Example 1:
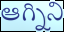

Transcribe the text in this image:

ఆగ్నిని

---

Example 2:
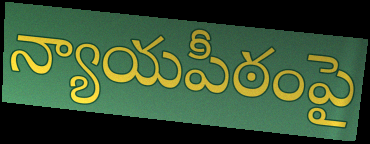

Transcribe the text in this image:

న్యాయపీఠంపై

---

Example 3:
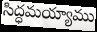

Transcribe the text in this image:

సిద్ధమయ్యాము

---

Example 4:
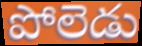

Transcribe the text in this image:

పోలెడు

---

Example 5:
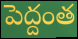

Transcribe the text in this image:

పెద్దంత